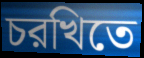
চরখিতে